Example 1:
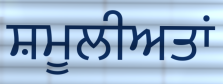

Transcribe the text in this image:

ਸ਼ਮੂਲੀਅਤਾਂ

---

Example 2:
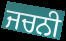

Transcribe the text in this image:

ਜਚਨੀ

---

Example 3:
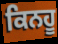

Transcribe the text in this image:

ਕਿਨਹੂ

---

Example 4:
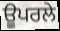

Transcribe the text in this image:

ਊਪਰਲੇ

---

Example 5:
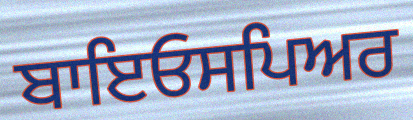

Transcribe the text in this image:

ਬਾਇਓਸਪਿਅਰ